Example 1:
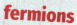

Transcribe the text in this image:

fermions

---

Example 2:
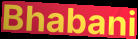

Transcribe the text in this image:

Bhabani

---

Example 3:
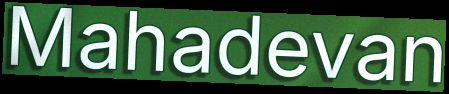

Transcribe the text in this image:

Mahadevan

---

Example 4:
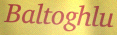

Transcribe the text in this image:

Baltoghlu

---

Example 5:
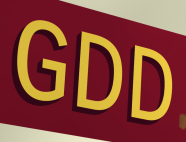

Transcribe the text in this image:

GDD